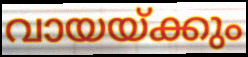
വായയ്ക്കും